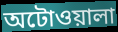
অটোওয়ালা